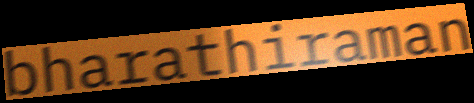
bharathiraman